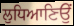
ਲੁਧਿਆਣਿਉਂ